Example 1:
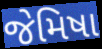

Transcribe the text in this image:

જેમિષા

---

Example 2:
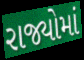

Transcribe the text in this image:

રાજ્યોમાં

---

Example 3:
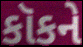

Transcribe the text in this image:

કૉકને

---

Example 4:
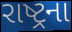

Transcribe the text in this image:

રાષ્ટ્રના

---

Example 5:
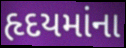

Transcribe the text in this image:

હૃદયમાંના